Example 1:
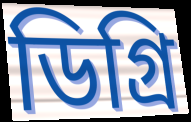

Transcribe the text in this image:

ডিগ্ৰি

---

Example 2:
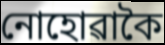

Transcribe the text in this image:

নোহোৱাকৈ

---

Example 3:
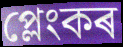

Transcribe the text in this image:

প্লেংকৰ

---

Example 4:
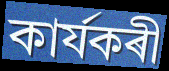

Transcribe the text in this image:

কাৰ্যকৰী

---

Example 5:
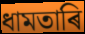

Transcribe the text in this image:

ধামতাৰি